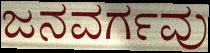
ಜನವರ್ಗವು